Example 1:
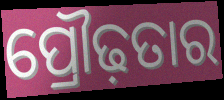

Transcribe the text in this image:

ପ୍ରୌଢ଼ତାର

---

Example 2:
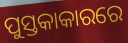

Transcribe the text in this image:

ପୁସ୍ତକାକାରରେ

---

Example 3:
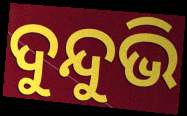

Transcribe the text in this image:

ଦୁନ୍ଦୁଭି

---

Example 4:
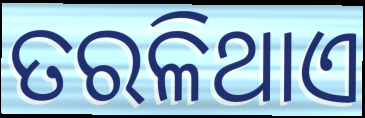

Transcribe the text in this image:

ତରଳିଥାଏ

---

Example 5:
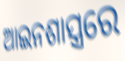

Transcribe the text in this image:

ଆଇନଶାସ୍ତ୍ରରେ